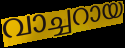
വാച്ചറായ